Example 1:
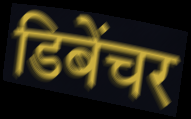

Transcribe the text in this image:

डिबेंचर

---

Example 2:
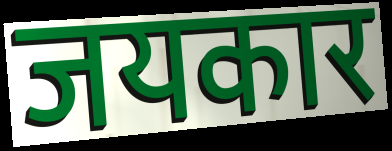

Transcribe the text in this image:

जयकार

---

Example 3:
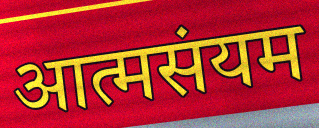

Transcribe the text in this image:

आत्मसंयम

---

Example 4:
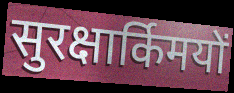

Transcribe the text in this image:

सुरक्षार्किमयों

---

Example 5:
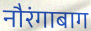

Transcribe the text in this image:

नौरंगाबाग